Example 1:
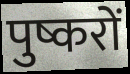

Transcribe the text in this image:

पुष्करों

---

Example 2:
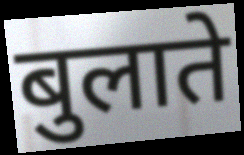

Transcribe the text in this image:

बुलाते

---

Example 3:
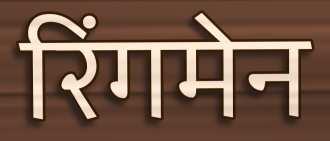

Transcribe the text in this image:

रिंगमेन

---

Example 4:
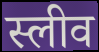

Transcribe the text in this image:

स्लीव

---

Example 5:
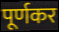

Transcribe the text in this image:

पूर्णकर